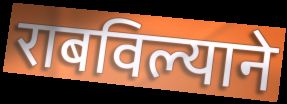
राबविल्याने